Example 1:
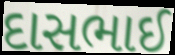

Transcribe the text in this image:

દાસભાઈ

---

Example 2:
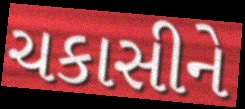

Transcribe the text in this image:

ચકાસીને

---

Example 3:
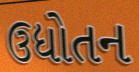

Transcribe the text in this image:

ઉદ્યોતન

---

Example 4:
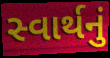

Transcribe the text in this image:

સ્વાર્થનું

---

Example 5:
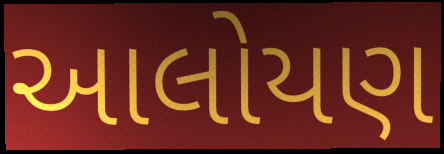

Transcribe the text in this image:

આલોયણ